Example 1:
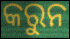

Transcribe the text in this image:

କରୁନ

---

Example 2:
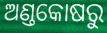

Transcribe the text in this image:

ଅଣ୍ଡକୋଷରୁ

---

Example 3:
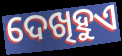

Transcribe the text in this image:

ଦେଖିହୁଏ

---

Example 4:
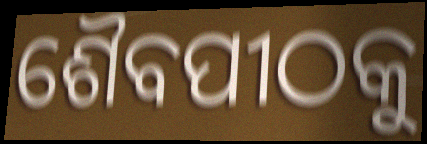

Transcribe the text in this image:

ଶୈବପୀଠକୁ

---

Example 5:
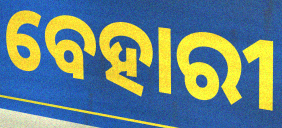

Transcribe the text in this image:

ବେହାରୀ